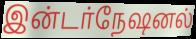
இன்டர்நேஷனல்